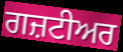
ਗਜ਼ਟੀਅਰ